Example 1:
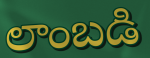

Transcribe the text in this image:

లాంబడి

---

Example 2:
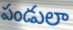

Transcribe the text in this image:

పండులా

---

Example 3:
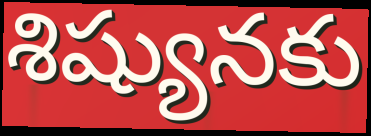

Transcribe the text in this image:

శిష్యునకు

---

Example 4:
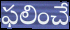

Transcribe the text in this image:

ఫలించే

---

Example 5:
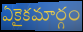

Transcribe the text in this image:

ఏకైకమార్గం